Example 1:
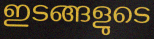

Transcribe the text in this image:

ഇടങ്ങളുടെ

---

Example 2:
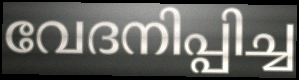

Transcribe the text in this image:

വേദനിപ്പിച്ച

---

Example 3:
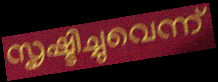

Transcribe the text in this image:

സൃഷ്ടിച്ചുവെന്ന്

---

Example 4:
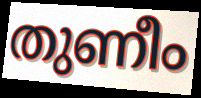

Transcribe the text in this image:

തുണീം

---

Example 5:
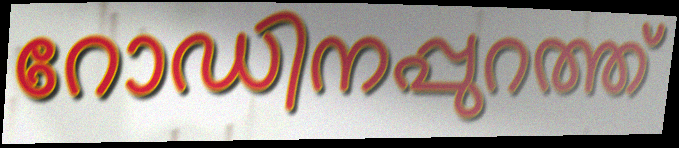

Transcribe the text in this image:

റോഡിനപ്പുറത്ത്